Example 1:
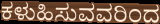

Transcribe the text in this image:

ಕಳುಹಿಸುವವರಿಂದ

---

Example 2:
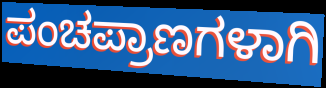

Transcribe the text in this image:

ಪಂಚಪ್ರಾಣಗಳಾಗಿ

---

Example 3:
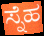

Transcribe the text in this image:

ಸ್ನೆಹ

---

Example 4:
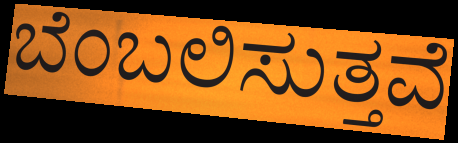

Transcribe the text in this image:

ಬೆಂಬಲಿಸುತ್ತವೆ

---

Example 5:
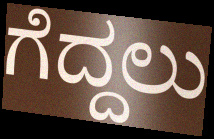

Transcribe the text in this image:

ಗೆದ್ದಲು